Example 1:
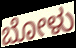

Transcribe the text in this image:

ಬೋಳು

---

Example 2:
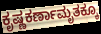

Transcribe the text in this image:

ಕೃಷ್ಣಕರ್ಣಾಮೃತಕ್ಕೂ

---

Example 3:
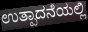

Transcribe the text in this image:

ಉತ್ಪಾದನೆಯಲ್ಲಿ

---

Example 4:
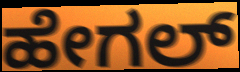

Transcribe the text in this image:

ಹೇಗಲ್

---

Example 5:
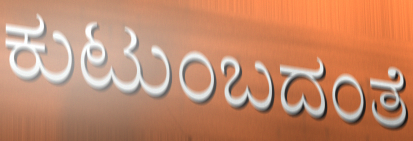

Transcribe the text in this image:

ಕುಟುಂಬದಂತೆ